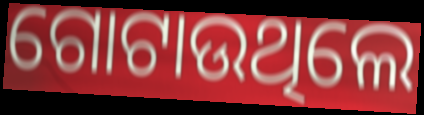
ଗୋଟାଉଥିଲେ